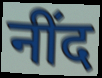
नींद